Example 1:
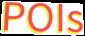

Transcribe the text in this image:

POIs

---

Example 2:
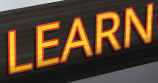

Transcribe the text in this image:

LEARN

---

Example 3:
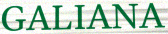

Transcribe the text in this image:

GALIANA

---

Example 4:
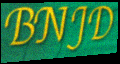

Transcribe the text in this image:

BNJD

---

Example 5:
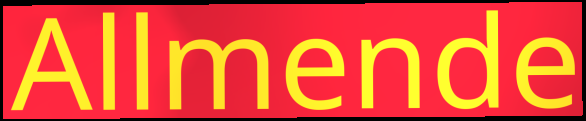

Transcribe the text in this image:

Allmende